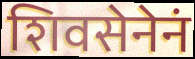
शिवसेनेनं